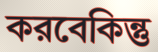
করবেকিন্তু